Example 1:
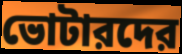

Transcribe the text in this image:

ভোটারদের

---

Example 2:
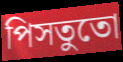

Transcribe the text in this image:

পিসতুতো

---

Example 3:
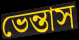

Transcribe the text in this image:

ভেন্তাস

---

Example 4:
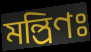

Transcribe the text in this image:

মন্ত্রিণঃ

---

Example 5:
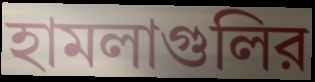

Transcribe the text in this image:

হামলাগুলির